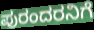
ಪುರಂದರನಿಗೆ